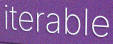
iterable